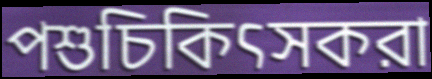
পশুচিকিৎসকরা